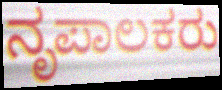
ನೃಪಾಲಕರು